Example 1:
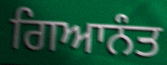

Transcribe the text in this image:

ਗਿਆਨੰਤ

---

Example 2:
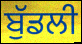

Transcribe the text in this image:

ਬੁੱਡਲੀ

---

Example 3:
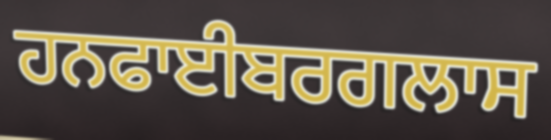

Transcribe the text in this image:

ਹਨਫਾਈਬਰਗਲਾਸ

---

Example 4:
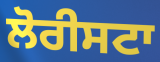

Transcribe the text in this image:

ਲੋਰੀਸਟਾ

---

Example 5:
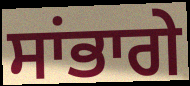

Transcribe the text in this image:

ਸਾਂਭਾਗੇ